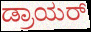
ಡ್ರಾಯರ್